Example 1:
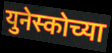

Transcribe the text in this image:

युनेस्कोच्या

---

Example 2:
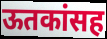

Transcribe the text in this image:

ऊतकांसह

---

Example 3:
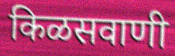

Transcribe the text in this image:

किळसवाणी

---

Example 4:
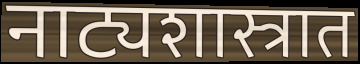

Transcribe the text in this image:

नाट्यशास्त्रात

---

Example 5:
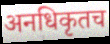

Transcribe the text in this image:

अनधिकृतच